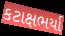
કટાક્ષભર્યા